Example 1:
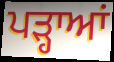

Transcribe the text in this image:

ਪੜ੍ਹਾਆਂ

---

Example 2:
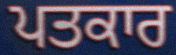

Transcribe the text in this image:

ਪਤਕਾਰ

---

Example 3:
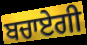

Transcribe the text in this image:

ਬਚਾਏਗੀ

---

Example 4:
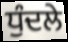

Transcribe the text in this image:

ਧੁੰਦਲੇ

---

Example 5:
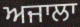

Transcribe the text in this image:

ਅਜਾਲਾ